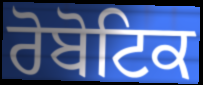
ਰੋਬੋਟਿਕ